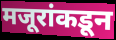
मजूरांकडून